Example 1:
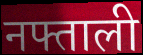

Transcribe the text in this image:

नफ्ताली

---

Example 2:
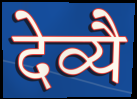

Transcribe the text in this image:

देव्यै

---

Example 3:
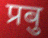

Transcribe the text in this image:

प्रबु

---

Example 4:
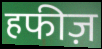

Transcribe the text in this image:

हफीज़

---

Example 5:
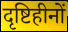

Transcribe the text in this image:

दृष्टिहीनों